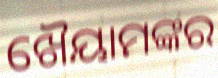
ଖୈୟାମଙ୍କର